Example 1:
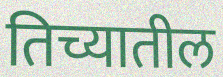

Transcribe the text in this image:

तिच्यातील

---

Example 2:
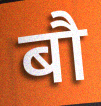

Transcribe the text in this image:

बौ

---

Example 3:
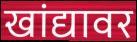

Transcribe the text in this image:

खांद्यावर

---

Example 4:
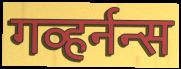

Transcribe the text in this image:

गव्हर्नन्स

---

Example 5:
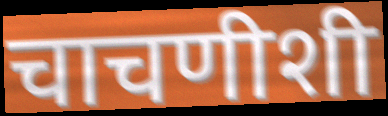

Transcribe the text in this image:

चाचणीशी